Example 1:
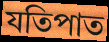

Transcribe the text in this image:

যতিপাত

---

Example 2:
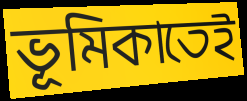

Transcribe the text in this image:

ভূমিকাতেই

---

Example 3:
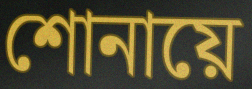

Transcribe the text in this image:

শোনায়ে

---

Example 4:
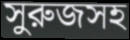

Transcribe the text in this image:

সুরুজসহ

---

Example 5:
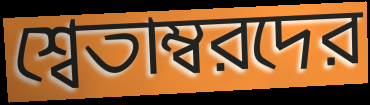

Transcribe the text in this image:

শ্বেতাম্বরদের